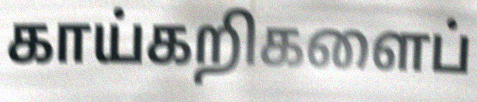
காய்கறிகளைப்